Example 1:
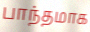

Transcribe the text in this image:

பாந்தமாக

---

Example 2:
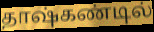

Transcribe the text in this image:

தாஷ்கண்டில்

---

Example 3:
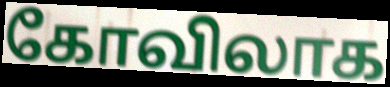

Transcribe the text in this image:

கோவிலாக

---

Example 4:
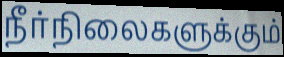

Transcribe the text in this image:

நீர்நிலைகளுக்கும்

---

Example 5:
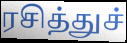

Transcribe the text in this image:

ரசித்துச்